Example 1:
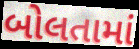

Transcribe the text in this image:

બોલતામાં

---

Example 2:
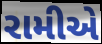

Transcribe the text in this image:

રામીએ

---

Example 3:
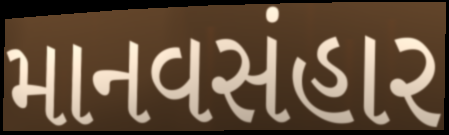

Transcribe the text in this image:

માનવસંહાર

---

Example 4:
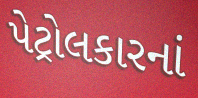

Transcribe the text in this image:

પેટ્રોલકારનાં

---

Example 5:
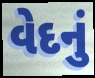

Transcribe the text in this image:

વેદનું